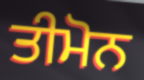
ਤੀਮੋਨ